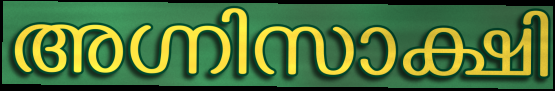
അഗ്നിസാക്ഷി